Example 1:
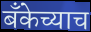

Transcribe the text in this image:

बँकेच्याच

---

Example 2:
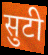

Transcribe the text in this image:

सुटी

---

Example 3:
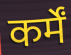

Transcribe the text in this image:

कर्में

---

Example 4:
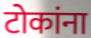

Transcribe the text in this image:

टोकांना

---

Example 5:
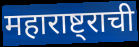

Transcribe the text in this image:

महाराष्ट्राची